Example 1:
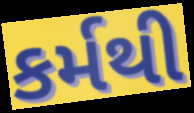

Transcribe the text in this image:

કર્મથી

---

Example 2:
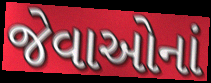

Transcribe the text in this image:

જેવાઓનાં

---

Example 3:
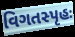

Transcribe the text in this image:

વિગતસ્પૃહઃ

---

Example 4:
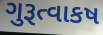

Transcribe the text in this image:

ગુરૂત્વાકષ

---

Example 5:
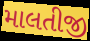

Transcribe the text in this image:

માલતીજી